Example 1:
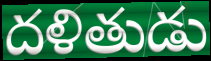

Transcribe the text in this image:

దళితుడు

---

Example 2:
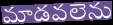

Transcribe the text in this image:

మాడవలెను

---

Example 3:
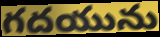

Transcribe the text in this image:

గదయును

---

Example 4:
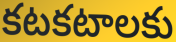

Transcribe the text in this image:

కటకటాలకు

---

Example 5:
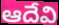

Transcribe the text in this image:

ఆదేవి